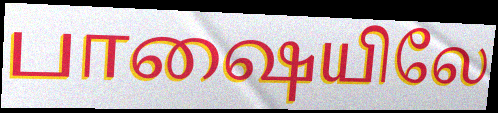
பாஷையிலே